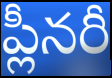
ప్లీనరీ